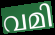
വമി